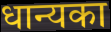
धान्यका